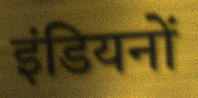
इंडियनों